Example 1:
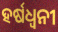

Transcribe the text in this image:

ହର୍ଷଧ୍ୱନୀ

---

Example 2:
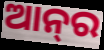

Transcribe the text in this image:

ଆନ୍‌ର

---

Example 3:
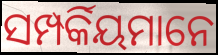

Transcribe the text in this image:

ସମ୍ପର୍କିୟମାନେ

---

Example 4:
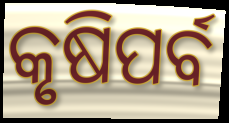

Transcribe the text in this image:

କୃଷିପର୍ବ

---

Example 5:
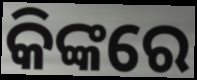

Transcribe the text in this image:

କିଙ୍କରେ